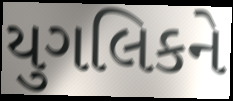
યુગલિકને